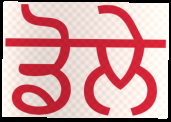
ਡੋਲੇ